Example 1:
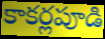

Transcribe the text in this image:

కాకర్లపూడి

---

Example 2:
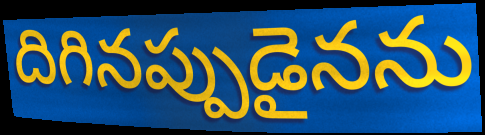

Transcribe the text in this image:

దిగినప్పుడైనను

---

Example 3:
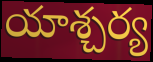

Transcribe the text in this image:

యాశ్చర్య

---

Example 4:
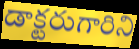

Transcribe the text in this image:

డాక్టరుగారిని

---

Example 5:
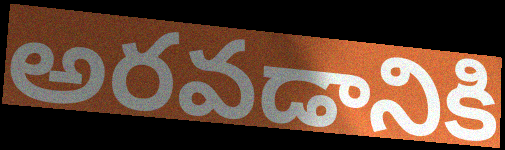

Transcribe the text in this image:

అరవడానికి